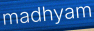
madhyam